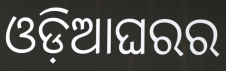
ଓଡ଼ିଆଘରର